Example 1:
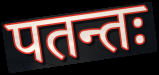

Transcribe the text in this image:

पतन्तः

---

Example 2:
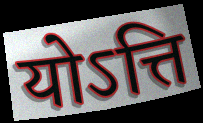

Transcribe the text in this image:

योऽत्ति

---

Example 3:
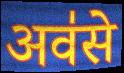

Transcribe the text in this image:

अव॑से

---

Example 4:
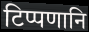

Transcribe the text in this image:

टिप्पणानि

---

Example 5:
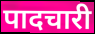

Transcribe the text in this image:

पादचारी